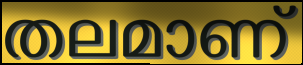
തലമാണ്